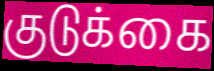
குடுக்கை